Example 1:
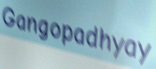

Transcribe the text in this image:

Gangopadhyay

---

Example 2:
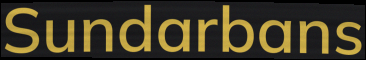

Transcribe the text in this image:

Sundarbans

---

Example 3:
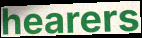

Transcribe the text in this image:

hearers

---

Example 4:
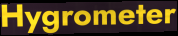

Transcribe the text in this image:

Hygrometer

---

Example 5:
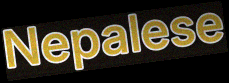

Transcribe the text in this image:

Nepalese